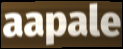
aapale